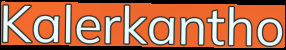
Kalerkantho